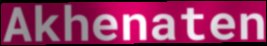
Akhenaten